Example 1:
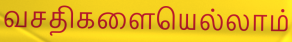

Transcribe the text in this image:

வசதிகளையெல்லாம்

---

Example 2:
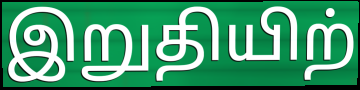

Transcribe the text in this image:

இறுதியிற்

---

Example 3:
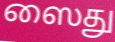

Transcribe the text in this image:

ஸைது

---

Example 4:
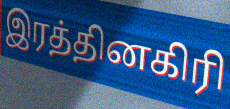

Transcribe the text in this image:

இரத்தினகிரி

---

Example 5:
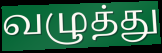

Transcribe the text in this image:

வழுத்து